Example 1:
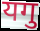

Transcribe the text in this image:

यगु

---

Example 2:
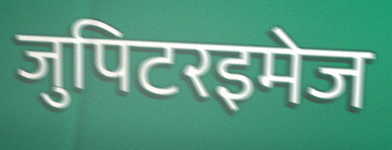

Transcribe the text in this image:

जुपिटरइमेज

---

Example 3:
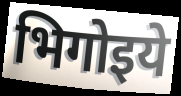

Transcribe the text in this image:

भिगोइये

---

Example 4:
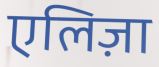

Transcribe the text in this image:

एलिज़ा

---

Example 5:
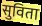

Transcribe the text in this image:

सुविता